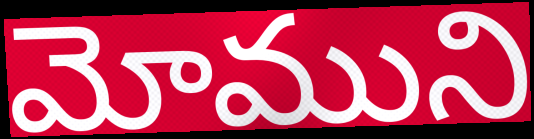
మోముని